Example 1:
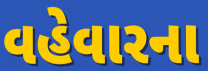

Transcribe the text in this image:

વહેવારના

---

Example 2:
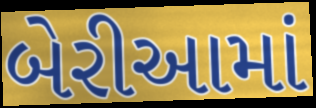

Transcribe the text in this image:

બેરીઆમાં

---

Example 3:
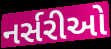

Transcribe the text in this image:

નર્સરીઓ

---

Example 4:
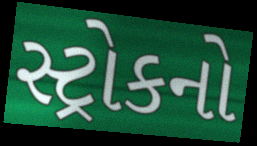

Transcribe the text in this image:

સ્ટ્રોકનો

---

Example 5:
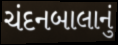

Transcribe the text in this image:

ચંદનબાલાનું